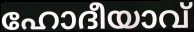
ഹോദീയാവ്